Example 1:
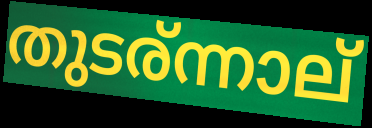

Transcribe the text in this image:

തുടര്ന്നാല്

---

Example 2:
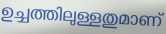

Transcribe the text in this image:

ഉച്ചത്തിലുള്ളതുമാണ്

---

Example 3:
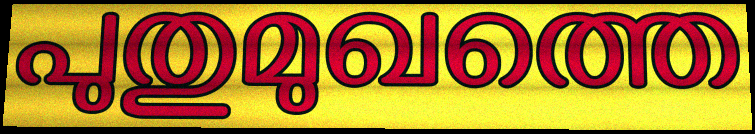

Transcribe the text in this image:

പുതുമുഖത്തെ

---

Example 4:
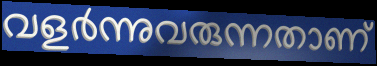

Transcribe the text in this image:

വളർന്നുവരുന്നതാണ്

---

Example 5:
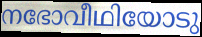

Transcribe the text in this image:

നഭോവീഥിയോടു